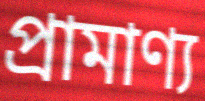
প্রামাণ্য